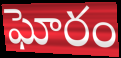
ఘోరం